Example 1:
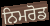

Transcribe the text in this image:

ਨਿਮਰੋਡ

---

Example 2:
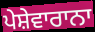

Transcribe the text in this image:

ਪੇਸ਼ੇਵਾਰਾਨਾ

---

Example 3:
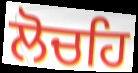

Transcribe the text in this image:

ਲੋਚਹਿ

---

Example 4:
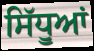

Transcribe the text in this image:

ਸਿੱਧੂਆਂ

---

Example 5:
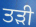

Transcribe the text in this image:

ਤੜੀ